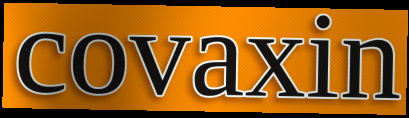
covaxin